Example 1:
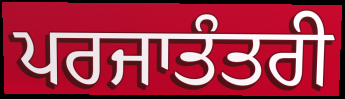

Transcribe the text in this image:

ਪਰਜਾਤੰਤਰੀ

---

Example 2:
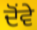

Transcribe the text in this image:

ਦੋਂਵੇ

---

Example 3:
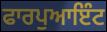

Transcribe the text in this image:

ਫਾਰਪੁਆਇੰਟ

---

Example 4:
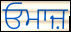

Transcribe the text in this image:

ਓਮਾਜ਼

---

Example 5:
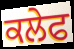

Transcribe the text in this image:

ਕਲੇਫ